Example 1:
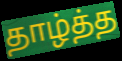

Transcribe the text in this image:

தாழ்த்த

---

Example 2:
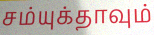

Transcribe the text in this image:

சம்யுக்தாவும்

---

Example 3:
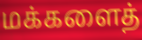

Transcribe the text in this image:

மக்களைத்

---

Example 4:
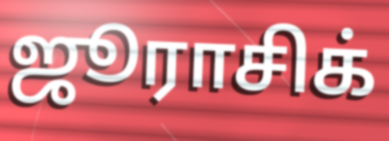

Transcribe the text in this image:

ஜூராசிக்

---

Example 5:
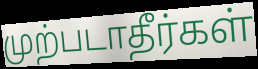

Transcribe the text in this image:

முற்படாதீர்கள்